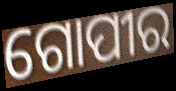
ଗୋପୀର